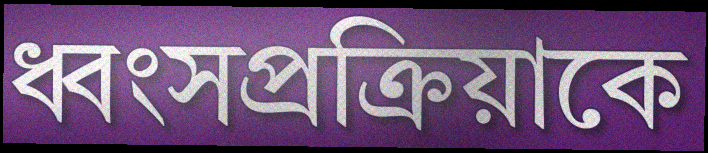
ধ্বংসপ্রক্রিয়াকে